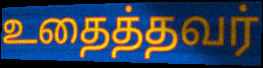
உதைத்தவர்